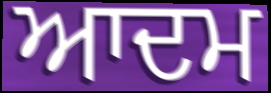
ਆਦਮ